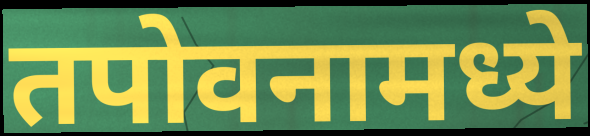
तपोवनामध्ये